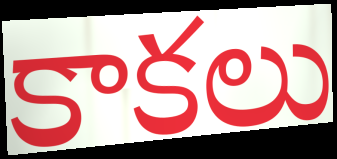
కాకలు